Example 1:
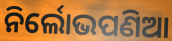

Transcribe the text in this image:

ନିର୍ଲୋଭପଣିଆ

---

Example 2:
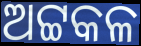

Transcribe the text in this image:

ଅଟ୍ଟକଳ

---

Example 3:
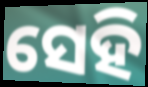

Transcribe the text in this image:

ସେହି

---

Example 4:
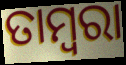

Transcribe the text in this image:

ତାମ୍ବରା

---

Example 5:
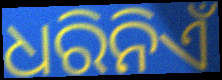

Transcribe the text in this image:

ଧରିନିଏଁ